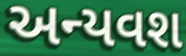
અન્યવશ